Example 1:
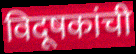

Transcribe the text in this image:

विदूषकांची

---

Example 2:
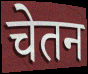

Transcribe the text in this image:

चेतन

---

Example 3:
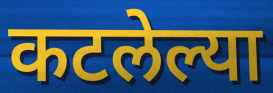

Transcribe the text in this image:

कटलेल्या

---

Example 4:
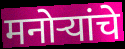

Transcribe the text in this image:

मनोऱ्यांचे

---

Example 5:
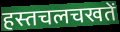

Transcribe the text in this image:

हस्तचलचखतें